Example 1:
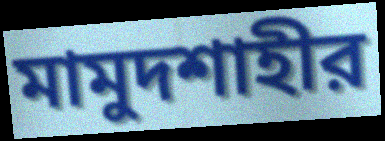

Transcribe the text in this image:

মামুদশাহীর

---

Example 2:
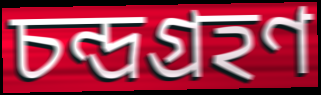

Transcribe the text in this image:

চন্দ্রগ্রহণ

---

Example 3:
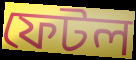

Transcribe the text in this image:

ফেটল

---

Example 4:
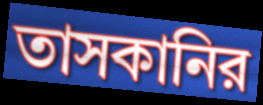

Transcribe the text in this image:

তাসকানির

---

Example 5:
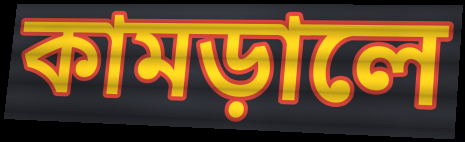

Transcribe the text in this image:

কামড়ালে